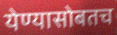
येण्यासोबतच